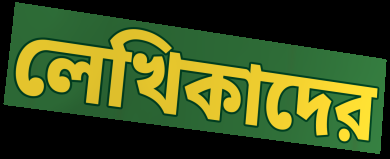
লেখিকাদের